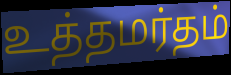
உத்தமர்தம்